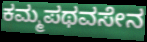
ಕಮ್ಮಪಥವಸೇನ